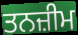
ਤਨਜ਼ੀਮ